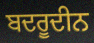
ਬਦਰੂਦੀਨ